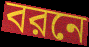
বরনে